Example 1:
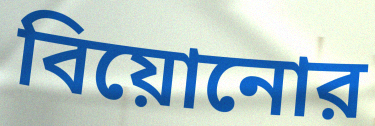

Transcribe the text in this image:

বিয়োনোর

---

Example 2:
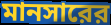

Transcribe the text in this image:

মানসারের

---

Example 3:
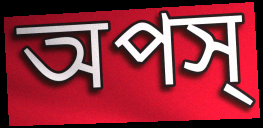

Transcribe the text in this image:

অপস্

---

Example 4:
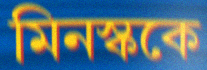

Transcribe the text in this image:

মিনস্ককে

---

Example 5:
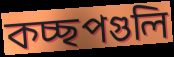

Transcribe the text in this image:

কচ্ছপগুলি